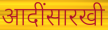
आदींसारखी